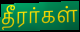
தீரர்கள்